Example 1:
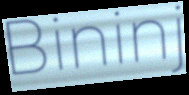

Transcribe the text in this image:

Bininj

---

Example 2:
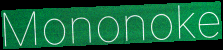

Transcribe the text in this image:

Mononoke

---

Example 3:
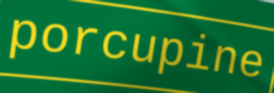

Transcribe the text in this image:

porcupine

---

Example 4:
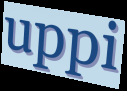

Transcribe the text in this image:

uppi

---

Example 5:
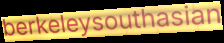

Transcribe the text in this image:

berkeleysouthasian